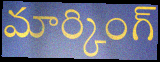
మార్కింగ్